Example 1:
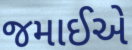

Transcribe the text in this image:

જમાઈએ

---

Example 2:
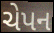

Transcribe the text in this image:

ચેપન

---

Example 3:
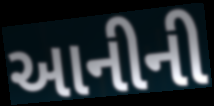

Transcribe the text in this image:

આનીની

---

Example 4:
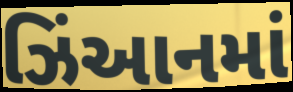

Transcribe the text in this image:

ઝિંઆનમાં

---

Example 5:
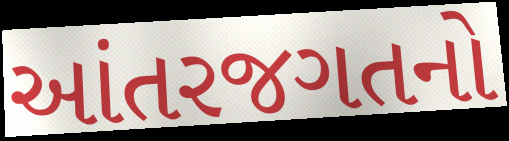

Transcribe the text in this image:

આંતરજગતનો